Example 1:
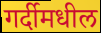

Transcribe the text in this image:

गर्दीमधील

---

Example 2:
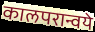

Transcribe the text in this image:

कालपरान्वये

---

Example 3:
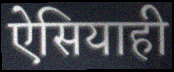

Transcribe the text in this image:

ऐसियाही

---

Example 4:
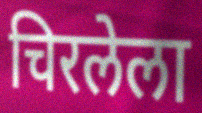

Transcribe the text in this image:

चिरलेला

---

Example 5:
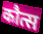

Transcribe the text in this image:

कौत्स